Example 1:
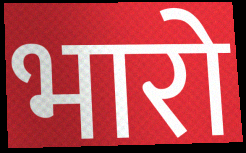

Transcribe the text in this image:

भारो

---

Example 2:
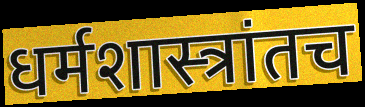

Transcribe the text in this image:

धर्मशास्त्रांतच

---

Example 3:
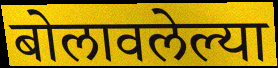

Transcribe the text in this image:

बोलावलेल्या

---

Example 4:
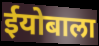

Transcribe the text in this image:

ईयोबाला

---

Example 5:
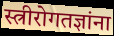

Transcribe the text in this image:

स्त्रीरोगतज्ञांना